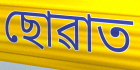
ছোৱাত